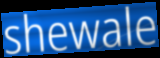
shewale